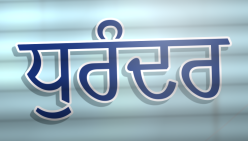
ਧੁਰੰਦਰ